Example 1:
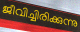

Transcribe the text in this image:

ജീവിച്ചിരിക്കുന്നു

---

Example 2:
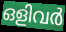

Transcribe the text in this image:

ഒളിവർ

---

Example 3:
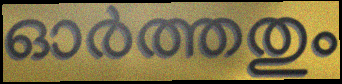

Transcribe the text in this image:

ഓർത്തതും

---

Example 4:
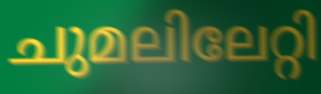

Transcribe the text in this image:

ചുമലിലേറ്റി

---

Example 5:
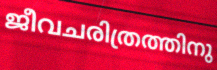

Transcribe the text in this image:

ജീവചരിത്രത്തിനു